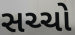
સચ્ચો